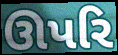
ઊપરિ